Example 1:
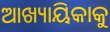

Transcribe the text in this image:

ଆଖ୍ୟାୟିକାକୁ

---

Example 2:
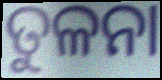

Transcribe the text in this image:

ତୁଳନା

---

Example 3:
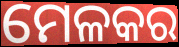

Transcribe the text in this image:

ମେଳକର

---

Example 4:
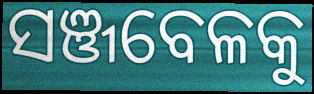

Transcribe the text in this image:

ସଞ୍ଜବେଳକୁ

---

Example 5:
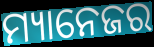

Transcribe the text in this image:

ମ୍ୟାନେଜର